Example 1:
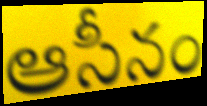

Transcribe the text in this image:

ఆసీనం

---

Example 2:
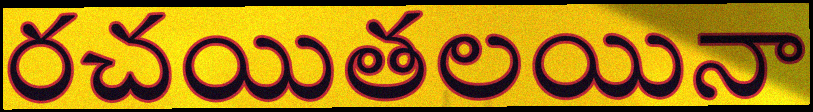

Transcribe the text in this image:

రచయితలయినా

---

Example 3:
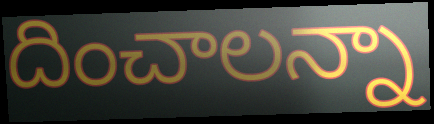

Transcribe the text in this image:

దించాలన్నా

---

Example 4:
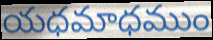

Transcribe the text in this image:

యధమాధముం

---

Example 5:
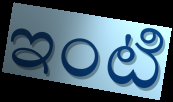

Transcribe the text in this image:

ఇంటి